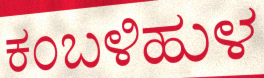
ಕಂಬಳಿಹುಳ